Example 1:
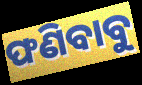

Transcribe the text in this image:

ଫଣିବାବୁ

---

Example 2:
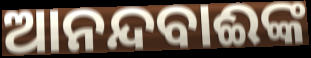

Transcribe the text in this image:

ଆନନ୍ଦବାଈଙ୍କ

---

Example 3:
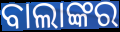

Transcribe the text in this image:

ବାଲାଙ୍କର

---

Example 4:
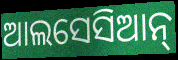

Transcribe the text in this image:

ଆଲସେସିଆନ୍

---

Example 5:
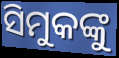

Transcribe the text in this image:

ସିମୁକଙ୍କୁ